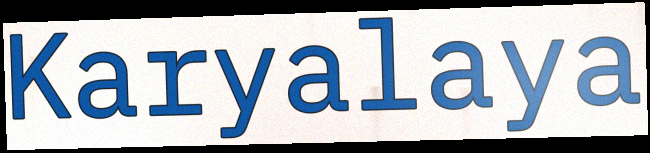
Karyalaya